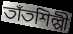
তাঁতশিল্পী